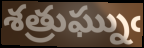
శత్రుఘ్నుఁ